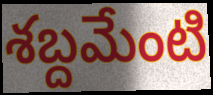
శబ్దమేంటి